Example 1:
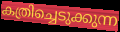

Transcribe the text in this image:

കത്രിച്ചെടുക്കുന്ന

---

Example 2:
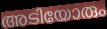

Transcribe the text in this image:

അടിയോരും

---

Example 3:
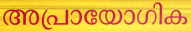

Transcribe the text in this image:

അപ്രായോഗിക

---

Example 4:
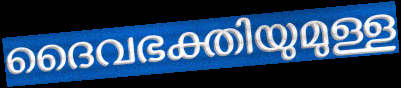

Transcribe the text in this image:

ദൈവഭക്തിയുമുള്ള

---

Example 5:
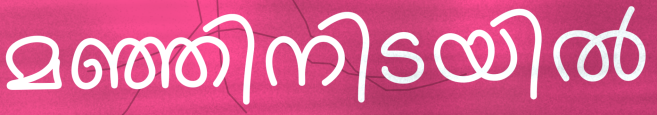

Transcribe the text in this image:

മഞ്ഞിനിടയിൽ